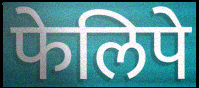
फेलिपे